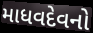
માધવદેવનો